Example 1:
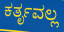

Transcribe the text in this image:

ಕರ್ತೃವಲ್ಲ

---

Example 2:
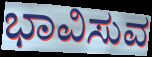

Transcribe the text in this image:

ಭಾವಿಸುವ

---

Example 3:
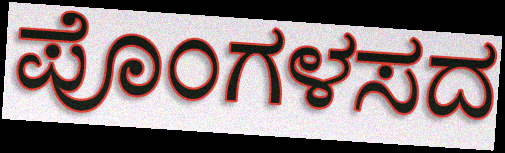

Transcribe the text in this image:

ಪೊಂಗಳಸದ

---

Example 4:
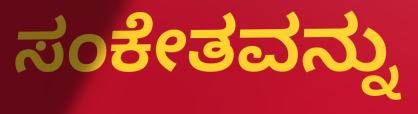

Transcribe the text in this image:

ಸಂಕೇತವನ್ನು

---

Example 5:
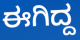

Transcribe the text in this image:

ಈಗಿದ್ದ